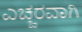
ಎಚ್ಚರವಾಗಿ